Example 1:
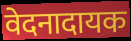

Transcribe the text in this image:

वेदनादायक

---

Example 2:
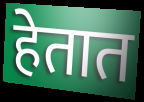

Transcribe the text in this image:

हेतात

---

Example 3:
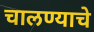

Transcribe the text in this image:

चालण्याचे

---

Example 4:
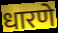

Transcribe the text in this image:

धारणे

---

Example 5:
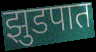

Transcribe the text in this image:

झुडपात